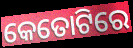
କେତୋଟିରେ